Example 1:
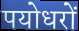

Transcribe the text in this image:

पयोधरों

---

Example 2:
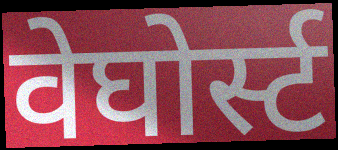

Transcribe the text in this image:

वेघोर्स्ट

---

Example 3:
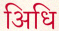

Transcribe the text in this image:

अिधि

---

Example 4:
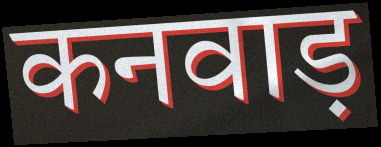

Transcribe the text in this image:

कनवाड़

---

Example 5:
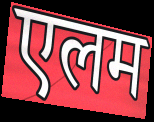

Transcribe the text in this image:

एलम